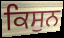
ਕਿਸੁਨ